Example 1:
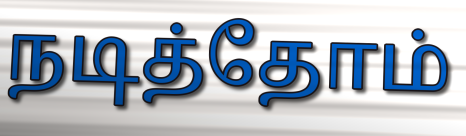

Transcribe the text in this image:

நடித்தோம்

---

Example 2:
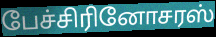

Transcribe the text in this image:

பேச்சிரினோசரஸ்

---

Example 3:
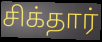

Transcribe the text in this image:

சிக்தார்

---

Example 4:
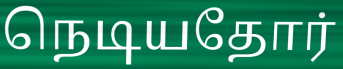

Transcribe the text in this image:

நெடியதோர்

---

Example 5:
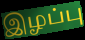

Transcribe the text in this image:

இழப்பு